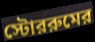
স্টোররুমের